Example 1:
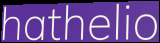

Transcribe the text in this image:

hathelio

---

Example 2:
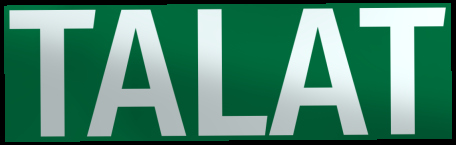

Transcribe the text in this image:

TALAT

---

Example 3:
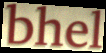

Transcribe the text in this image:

bhel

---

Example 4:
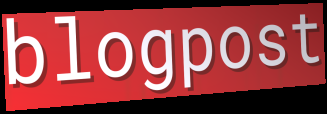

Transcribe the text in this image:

blogpost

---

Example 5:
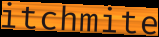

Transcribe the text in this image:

itchmite